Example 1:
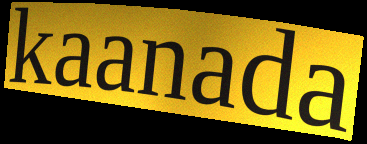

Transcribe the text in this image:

kaanada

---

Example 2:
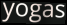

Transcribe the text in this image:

yogas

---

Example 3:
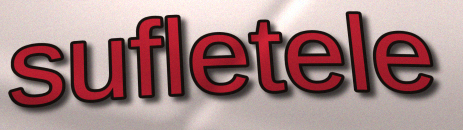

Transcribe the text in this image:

sufletele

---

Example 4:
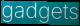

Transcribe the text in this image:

gadgets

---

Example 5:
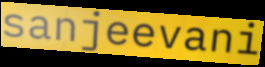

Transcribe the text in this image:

sanjeevani